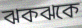
ঝকঝকে